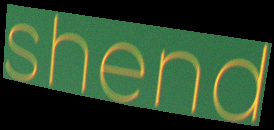
shend